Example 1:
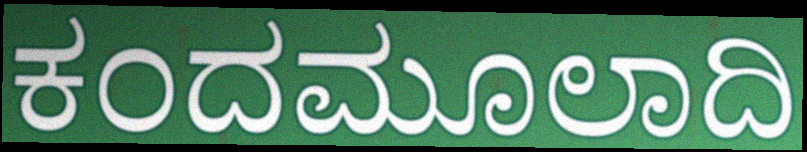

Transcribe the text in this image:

ಕಂದಮೂಲಾದಿ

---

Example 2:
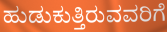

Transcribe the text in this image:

ಹುಡುಕುತ್ತಿರುವವರಿಗೆ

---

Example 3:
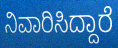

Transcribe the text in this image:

ನಿವಾರಿಸಿದ್ದಾರೆ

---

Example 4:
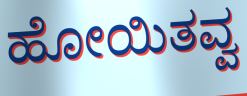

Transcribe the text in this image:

ಹೋಯಿತವ್ವ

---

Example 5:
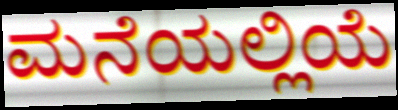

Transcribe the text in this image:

ಮನೆಯಲ್ಲಿಯೆ